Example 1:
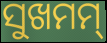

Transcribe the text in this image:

ସୁଖମମ୍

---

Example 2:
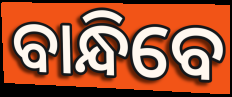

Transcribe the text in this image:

ବାନ୍ଧିବେ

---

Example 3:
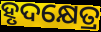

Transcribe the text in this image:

ହୃଦକ୍ଷେତ୍ର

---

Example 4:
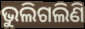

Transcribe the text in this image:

ଭୁଲିଗଲିଣି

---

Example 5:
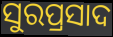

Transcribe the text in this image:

ସୁରପ୍ରସାଦ